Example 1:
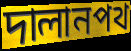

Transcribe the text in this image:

দালানপথ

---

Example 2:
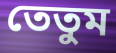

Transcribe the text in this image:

তেতুম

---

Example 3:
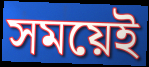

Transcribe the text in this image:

সময়েই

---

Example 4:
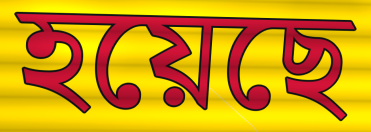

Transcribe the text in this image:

হয়েছে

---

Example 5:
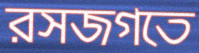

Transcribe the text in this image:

রসজগতে